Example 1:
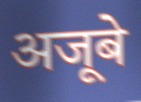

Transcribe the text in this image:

अजूबे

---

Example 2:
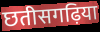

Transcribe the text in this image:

छतीसगढ़िया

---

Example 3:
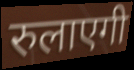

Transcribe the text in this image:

रुलाएगी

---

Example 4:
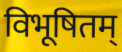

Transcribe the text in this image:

विभूषितम्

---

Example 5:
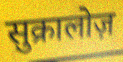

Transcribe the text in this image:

सुक्रालोज़